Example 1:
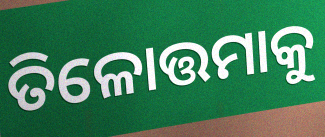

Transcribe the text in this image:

ତିଳୋତ୍ତମାକୁ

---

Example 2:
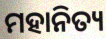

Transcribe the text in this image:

ମହାନିତ୍ୟ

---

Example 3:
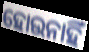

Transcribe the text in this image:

ହୋଉନାହିଁ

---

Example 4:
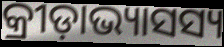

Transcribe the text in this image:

କ୍ରୀଡ଼ାଭ୍ୟାସସ୍ୟ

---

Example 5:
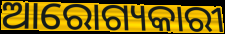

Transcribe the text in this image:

ଆରୋଗ୍ୟକାରୀ